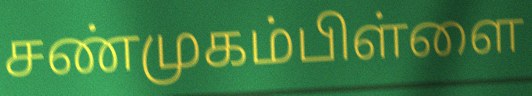
சண்முகம்பிள்ளை